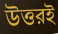
উত্তরই